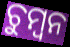
ଚୁମ୍ୱନ